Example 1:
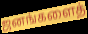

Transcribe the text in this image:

ஜனங்களைத்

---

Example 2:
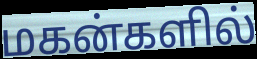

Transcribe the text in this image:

மகன்களில்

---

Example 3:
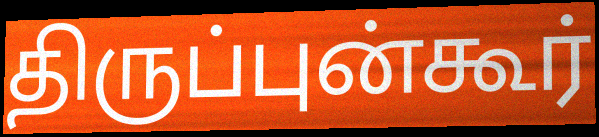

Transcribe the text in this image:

திருப்புன்கூர்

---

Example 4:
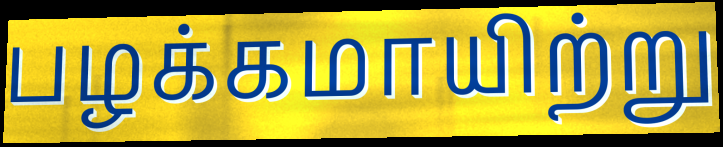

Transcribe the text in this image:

பழக்கமாயிற்று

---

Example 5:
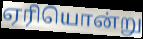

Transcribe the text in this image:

ஏரியொன்று